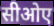
सीओए